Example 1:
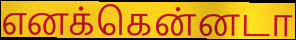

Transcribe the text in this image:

எனக்கென்னடா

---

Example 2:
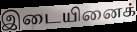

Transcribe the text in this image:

இடையினைக்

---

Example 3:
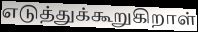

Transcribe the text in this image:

எடுத்துக்கூறுகிறாள்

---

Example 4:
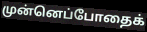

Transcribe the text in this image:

முன்னெப்போதைக்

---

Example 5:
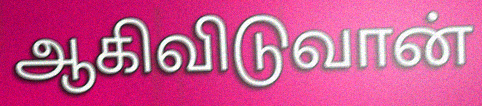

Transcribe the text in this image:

ஆகிவிடுவான்